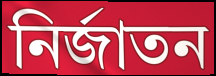
নিৰ্জাতন